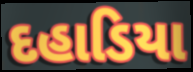
દહાડિયા